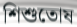
শিশুতোষ